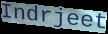
Indrjeet